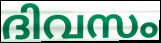
ദിവസം